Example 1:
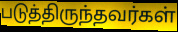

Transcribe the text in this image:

படுத்திருந்தவர்கள்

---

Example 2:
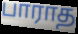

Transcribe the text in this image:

பாராத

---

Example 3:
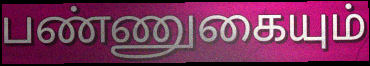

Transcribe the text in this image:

பண்ணுகையும்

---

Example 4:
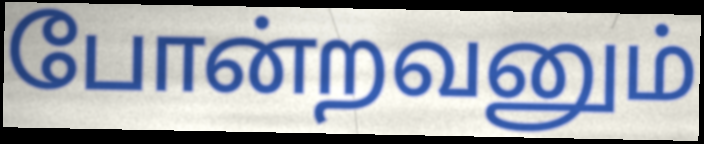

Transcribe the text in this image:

போன்றவனும்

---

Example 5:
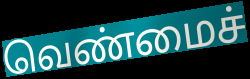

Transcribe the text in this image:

வெண்மைச்